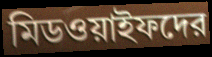
মিডওয়াইফদের